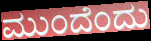
ಮುಂದೆಂದು